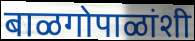
बाळगोपाळांशी